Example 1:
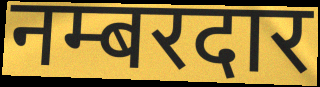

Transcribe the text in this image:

नम्बरदार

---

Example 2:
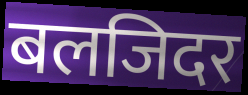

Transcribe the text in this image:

बलजिदर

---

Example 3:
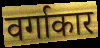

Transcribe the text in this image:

वर्गाकार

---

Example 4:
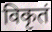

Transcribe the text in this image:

विकृतं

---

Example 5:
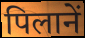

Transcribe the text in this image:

पिलानें